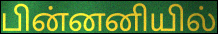
பின்னனியில்